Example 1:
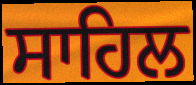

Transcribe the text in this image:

ਸਾਹਿਲ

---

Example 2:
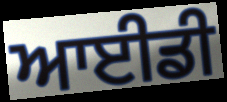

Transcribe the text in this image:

ਆਈਡੀ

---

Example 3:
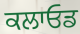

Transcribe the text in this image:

ਕਲਾਓਡ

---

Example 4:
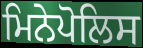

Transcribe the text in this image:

ਮਿਨੇਪੋਲਿਸ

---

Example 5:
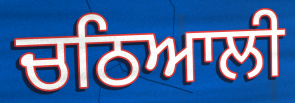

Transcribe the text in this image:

ਚਠਿਆਲੀ